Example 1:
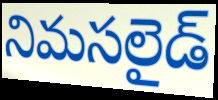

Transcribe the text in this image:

నిమసలైడ్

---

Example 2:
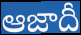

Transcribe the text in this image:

ఆజాదీ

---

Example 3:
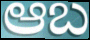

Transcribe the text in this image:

ఆబ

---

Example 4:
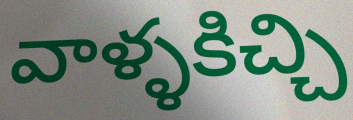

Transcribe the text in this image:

వాళ్ళకిచ్చి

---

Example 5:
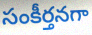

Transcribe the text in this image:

సంకీర్తనగా